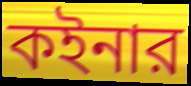
কইনার